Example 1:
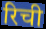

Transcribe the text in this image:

रिची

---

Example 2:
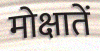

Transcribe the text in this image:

मोक्षातें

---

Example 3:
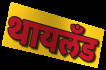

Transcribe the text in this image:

थायलँड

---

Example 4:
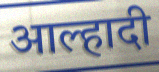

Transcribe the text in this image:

आल्हादी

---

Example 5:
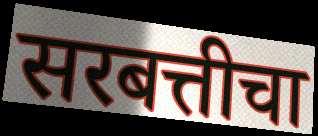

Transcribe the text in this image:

सरबत्तीचा